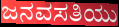
ಜನವಸತಿಯು